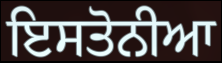
ਇਸਤੋਨੀਆ